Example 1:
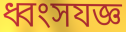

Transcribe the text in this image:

ধ্বংসযজ্ঞ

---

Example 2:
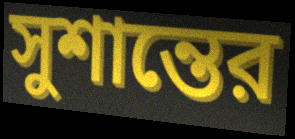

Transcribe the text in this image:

সুশান্তের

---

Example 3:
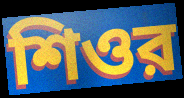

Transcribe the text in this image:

শিওর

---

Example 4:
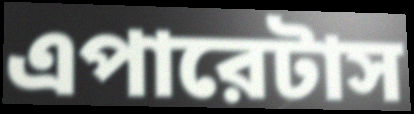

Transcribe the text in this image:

এপারেটাস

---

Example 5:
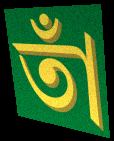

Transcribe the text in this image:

তাঁ